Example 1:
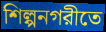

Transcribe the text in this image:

শিল্পনগরীতে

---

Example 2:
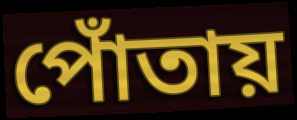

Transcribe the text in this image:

পোঁতায়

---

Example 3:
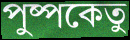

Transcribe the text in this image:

পুষ্পকেতু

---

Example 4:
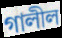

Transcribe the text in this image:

গালীল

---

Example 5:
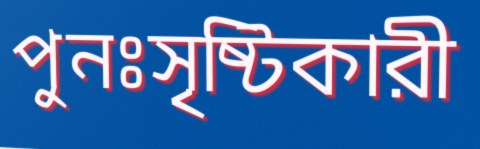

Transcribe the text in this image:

পুনঃসৃষ্টিকারী